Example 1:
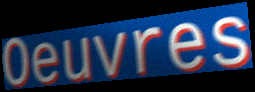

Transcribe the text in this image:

Oeuvres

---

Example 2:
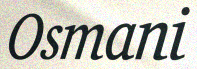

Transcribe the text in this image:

Osmani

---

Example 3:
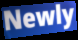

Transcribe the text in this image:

Newly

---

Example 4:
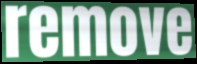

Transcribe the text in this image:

remove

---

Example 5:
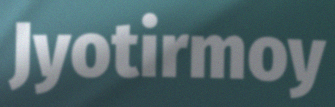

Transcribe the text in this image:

Jyotirmoy